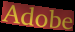
Adobe